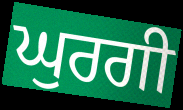
ਘੁਰਗੀ